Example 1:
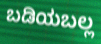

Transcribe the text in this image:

ಬಡಿಯಬಲ್ಲ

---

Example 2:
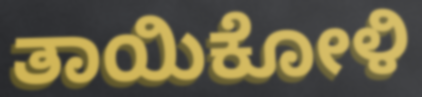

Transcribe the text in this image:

ತಾಯಿಕೋಳಿ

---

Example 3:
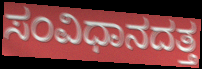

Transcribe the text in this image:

ಸಂವಿಧಾನದತ್ತ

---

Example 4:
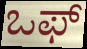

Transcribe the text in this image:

ಒಫ್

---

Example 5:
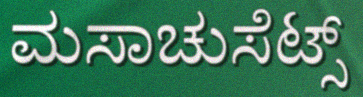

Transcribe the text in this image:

ಮಸಾಚುಸೆಟ್ಸ್